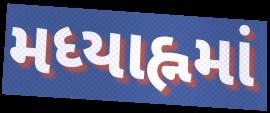
મધ્યાહ્નમાં